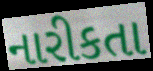
નારીકતા